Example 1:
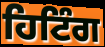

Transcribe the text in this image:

ਹਿਟਿੰਗ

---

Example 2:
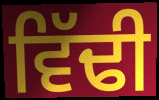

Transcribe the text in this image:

ਵਿੱਢੀ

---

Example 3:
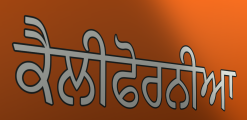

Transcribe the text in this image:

ਕੈਲੀਫੋਰਨੀਆ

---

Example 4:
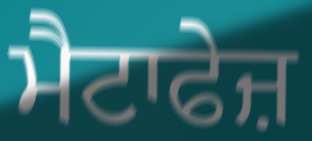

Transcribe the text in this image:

ਮੈਟਾਫੇਜ਼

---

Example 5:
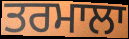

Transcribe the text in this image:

ਤਰਮਾਲਾ